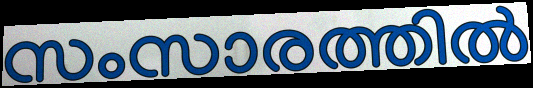
സംസാരത്തിൽ